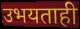
उभयताही